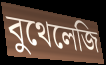
বুথেলেজি